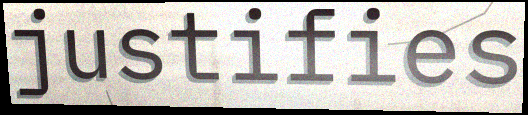
justifies